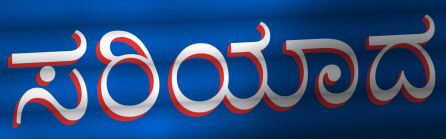
ಸರಿಯಾದ